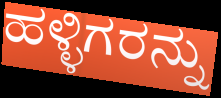
ಹಳ್ಳಿಗರನ್ನು